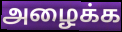
அழைக்க